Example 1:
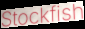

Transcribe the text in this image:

Stockfish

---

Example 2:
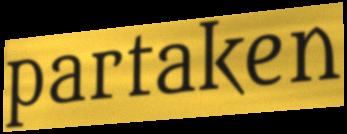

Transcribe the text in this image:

partaken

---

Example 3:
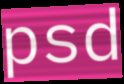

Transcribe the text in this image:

psd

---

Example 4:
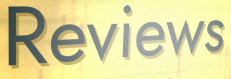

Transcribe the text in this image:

Reviews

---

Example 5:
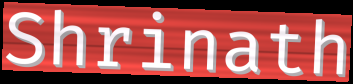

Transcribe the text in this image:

Shrinath